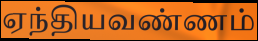
ஏந்தியவண்ணம்